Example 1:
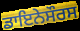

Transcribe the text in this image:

ਡਾਇਨੇਸੌਰਸ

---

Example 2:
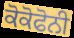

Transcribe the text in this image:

ਕੋਕੋਫੋਨੀ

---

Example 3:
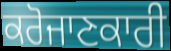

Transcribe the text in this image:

ਕਰੋਜਾਣਕਾਰੀ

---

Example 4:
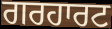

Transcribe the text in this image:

ਗਰਹਾਰਟ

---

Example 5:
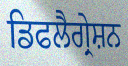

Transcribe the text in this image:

ਡਿਫਲੈਗ੍ਰੇਸ਼ਨ